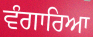
ਵੰਗਾਰਿਆ